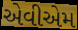
એવીએમ